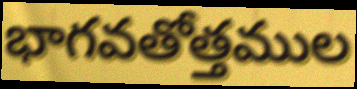
భాగవతోత్తముల